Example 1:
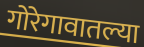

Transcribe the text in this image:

गोरेगावातल्या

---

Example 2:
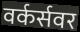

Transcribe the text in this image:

वर्कर्सवर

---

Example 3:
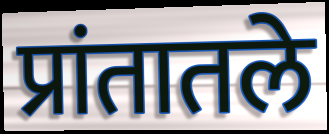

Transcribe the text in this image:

प्रांतातले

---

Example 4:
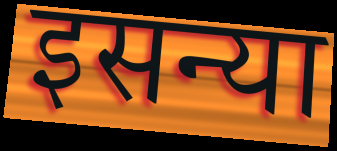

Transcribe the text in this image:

इसन्या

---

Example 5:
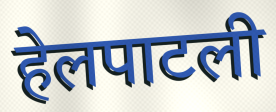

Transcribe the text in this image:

हेलपाटली